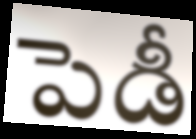
పెడీ